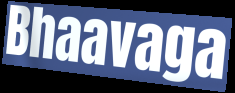
Bhaavaga